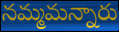
నమ్మమన్నారు